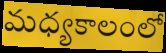
మధ్యకాలంలో